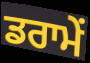
ਡਰਾਮੇਂ